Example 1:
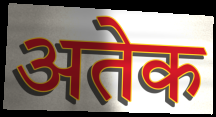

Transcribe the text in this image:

अतेक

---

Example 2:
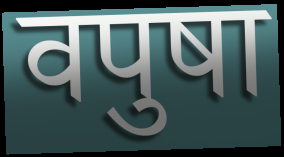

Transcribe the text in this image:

वपुषा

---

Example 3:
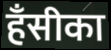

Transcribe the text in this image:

हँसीका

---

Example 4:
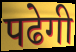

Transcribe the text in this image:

पढेगी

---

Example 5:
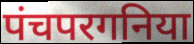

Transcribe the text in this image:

पंचपरगनिया